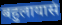
बहुलायासं